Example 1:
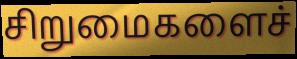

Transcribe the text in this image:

சிறுமைகளைச்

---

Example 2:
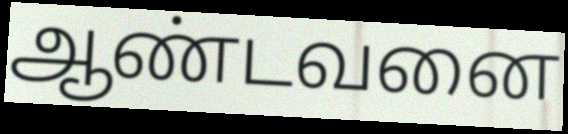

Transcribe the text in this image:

ஆண்டவனை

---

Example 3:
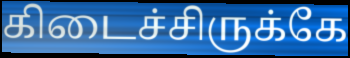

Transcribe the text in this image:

கிடைச்சிருக்கே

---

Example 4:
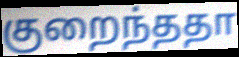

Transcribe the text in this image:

குறைந்ததா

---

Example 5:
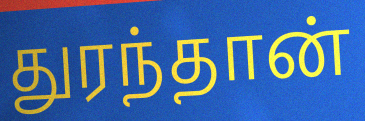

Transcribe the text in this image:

துரந்தான்